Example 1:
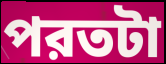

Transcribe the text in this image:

পরতটা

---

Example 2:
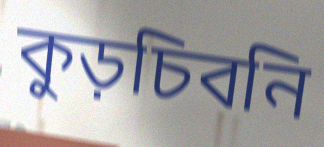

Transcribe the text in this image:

কুড়চিবনি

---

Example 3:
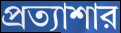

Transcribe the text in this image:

প্রত্যাশার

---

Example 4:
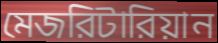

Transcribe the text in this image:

মেজরিটারিয়ান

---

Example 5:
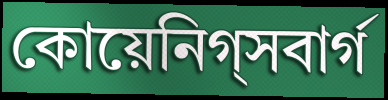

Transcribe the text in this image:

কোয়েনিগ্সবার্গ